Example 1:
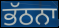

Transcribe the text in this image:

ਭੱਠਨਾ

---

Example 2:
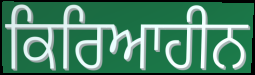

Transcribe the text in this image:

ਕਿਰਿਆਹੀਨ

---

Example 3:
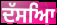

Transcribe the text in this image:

ਦੱਸਆਿ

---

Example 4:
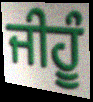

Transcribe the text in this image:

ਜੀਹੂੰ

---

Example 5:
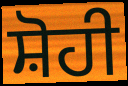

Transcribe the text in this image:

ਸ਼ੋਹੀ